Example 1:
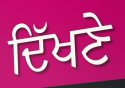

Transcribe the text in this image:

ਦਿੱਖਣੇ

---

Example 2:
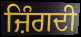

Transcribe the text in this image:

ਜ਼ਿੰਗਦੀ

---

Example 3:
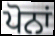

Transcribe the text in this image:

ਪੋਨਾਂ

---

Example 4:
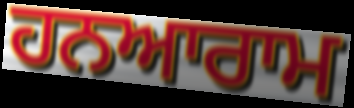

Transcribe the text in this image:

ਹਨਆਰਾਮ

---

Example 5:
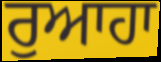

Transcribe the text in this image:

ਰੁਆਹਾ